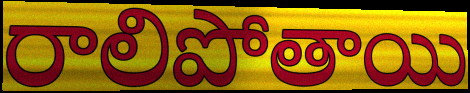
రాలిపోతాయి